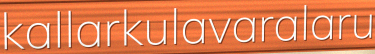
kallarkulavaralaru